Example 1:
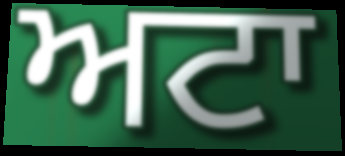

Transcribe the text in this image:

ਅਟਾ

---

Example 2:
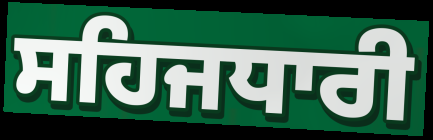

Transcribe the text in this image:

ਸਹਿਜਧਾਰੀ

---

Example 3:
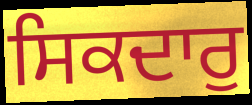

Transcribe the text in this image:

ਸਿਕਦਾਰੁ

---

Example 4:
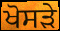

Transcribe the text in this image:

ਖੋਸੜੇ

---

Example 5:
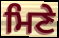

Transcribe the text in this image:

ਮਿਣੇ